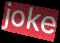
joke